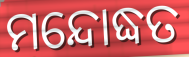
ମନ୍ଦୋଦ୍ଧତ